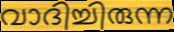
വാദിച്ചിരുന്ന